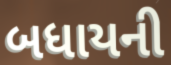
બધાયની